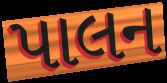
પાલન